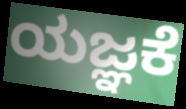
ಯಜ್ಞಕೆ